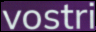
vostri